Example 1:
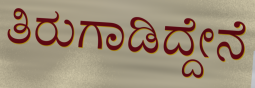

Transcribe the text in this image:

ತಿರುಗಾಡಿದ್ದೇನೆ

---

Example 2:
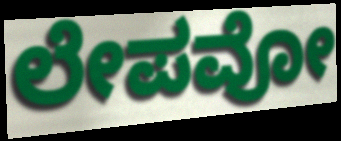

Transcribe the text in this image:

ಲೇಪವೋ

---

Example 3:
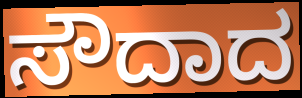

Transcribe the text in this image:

ಸೌದಾದ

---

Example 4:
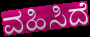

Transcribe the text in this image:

ವಹಿಸಿದೆ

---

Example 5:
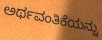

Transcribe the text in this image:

ಅರ್ಥವಂತಿಕೆಯನ್ನು